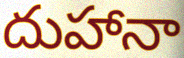
దుహానా